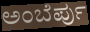
ಅಂಬೆರ್ಪು